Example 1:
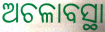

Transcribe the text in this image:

ଅଚଳାବସ୍ଥା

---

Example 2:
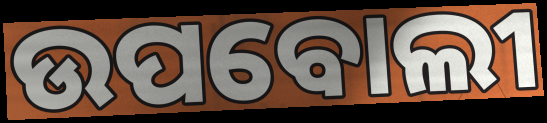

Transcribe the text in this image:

ଉପବୋଲୀ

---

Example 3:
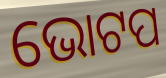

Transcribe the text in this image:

ଭୋଟପ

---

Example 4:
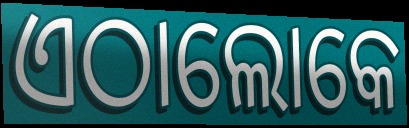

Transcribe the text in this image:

ଏଠାଲୋକେ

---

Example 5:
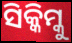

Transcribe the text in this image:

ସିକ୍କିମ୍କୁ